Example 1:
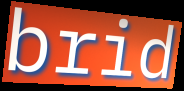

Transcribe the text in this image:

brid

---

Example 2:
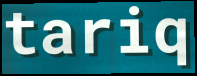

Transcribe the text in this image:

tariq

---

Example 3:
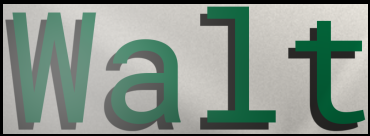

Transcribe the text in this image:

Walt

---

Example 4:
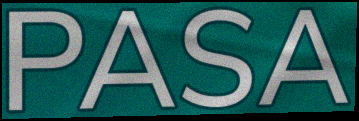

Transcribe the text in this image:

PASA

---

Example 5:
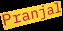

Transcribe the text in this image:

Pranjal